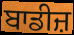
ਬਾਡੀਜ਼